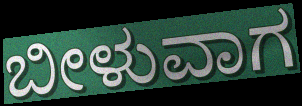
ಬೀಳುವಾಗ